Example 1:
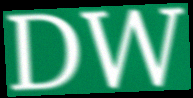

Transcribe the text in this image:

DW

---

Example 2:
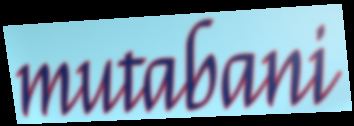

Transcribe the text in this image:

mutabani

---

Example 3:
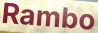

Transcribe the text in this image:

Rambo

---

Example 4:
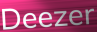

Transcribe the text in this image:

Deezer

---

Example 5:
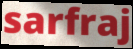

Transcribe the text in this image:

sarfraj